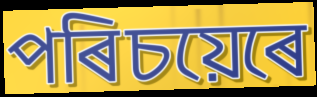
পৰিচয়েৰে